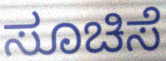
ಸೂಚಿಸೆ